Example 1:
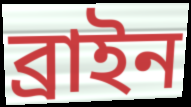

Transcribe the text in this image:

ব্রাইন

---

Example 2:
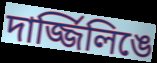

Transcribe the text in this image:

দার্জ্জিলিঙে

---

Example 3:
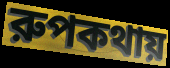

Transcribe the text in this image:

রুপকথায়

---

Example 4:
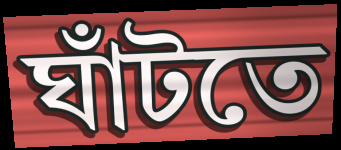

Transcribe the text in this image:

ঘাঁটতে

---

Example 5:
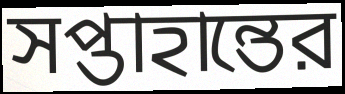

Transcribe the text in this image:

সপ্তাহান্তের